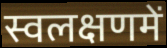
स्वलक्षणमें